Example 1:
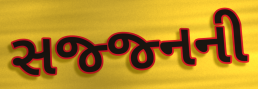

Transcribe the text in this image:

સજ્જ્નની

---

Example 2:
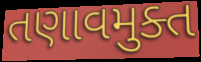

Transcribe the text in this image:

તણાવમુક્ત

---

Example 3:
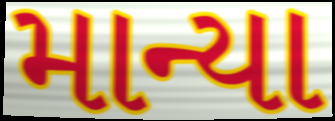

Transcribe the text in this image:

માન્યા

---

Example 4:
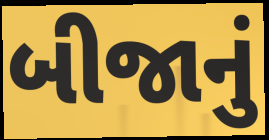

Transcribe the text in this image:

બીજાનું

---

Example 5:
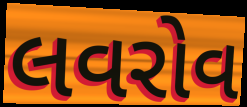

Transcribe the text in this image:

લવરોવ